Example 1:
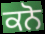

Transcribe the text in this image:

ਕਨੋ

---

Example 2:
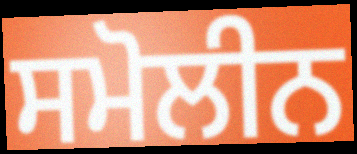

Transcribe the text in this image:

ਸਮੋਲੀਨ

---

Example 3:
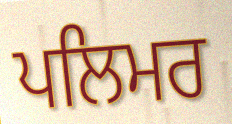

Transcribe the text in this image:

ਪਲਿਮਰ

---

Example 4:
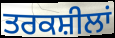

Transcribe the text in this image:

ਤਰਕਸ਼ੀਲਾਂ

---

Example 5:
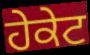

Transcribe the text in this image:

ਹੇਕੇਟ